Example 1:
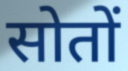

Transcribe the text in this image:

सोतों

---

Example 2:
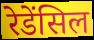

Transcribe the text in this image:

रेडेंसिल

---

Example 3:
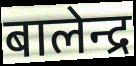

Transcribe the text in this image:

बालेन्द्र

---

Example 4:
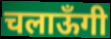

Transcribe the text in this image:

चलाऊँगी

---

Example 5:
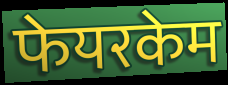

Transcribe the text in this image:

फेयरकेम